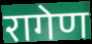
रागेण